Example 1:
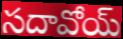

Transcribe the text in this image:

సదావోయ్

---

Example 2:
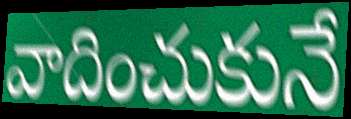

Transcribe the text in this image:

వాదించుకునే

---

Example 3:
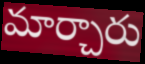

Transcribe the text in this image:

మార్చారు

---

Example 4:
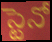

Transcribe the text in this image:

స్టెనో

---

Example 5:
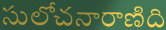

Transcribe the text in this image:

సులోచనారాణిది